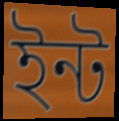
ইন্ট